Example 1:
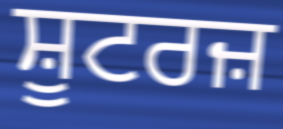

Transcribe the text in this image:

ਸ਼ੂਟਰਜ਼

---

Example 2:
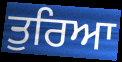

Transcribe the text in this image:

ਤੁਰਿਆ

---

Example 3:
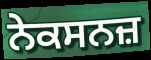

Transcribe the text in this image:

ਨੇਕਸਨਜ਼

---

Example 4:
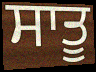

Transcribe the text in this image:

ਸਾਤੂ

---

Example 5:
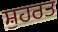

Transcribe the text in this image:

ਸ਼ੁਹਰਤ